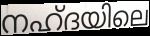
നഹ്ദയിലെ